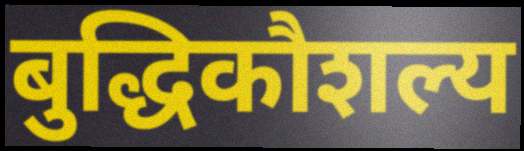
बुद्धिकौशल्य